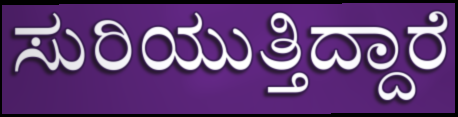
ಸುರಿಯುತ್ತಿದ್ದಾರೆ